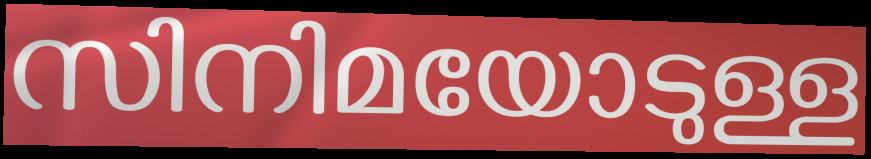
സിനിമയോടുള്ള